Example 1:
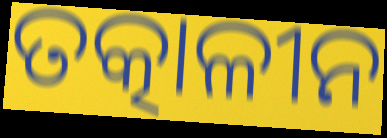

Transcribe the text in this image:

ତତ୍କାଳୀନ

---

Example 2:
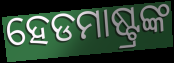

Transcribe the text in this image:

ହେଡମାଷ୍ଟ୍ରଙ୍କ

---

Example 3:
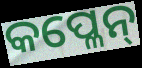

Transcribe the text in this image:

କପ୍ଳେନ୍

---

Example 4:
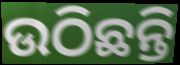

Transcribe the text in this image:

ଉଠିଛନ୍ତି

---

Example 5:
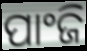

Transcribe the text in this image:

ପାଂଜି